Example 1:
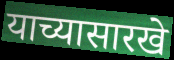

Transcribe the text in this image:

याच्यासारखे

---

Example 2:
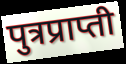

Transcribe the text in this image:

पुत्रप्राप्ती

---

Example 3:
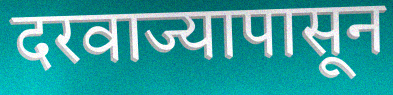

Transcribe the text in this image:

दरवाज्यापासून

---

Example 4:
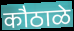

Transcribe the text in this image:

कौठाळे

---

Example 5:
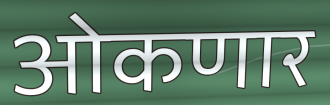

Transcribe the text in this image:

ओकणार